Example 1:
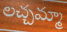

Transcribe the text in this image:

లచ్చమ్మా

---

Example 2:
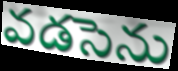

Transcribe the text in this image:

వడసెను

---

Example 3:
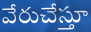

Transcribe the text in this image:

వేరుచేస్తూ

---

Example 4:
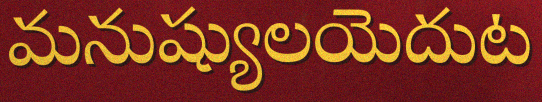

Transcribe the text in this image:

మనుష్యులయెదుట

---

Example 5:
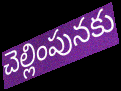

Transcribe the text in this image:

చెల్లింపునకు